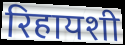
रिहायशी